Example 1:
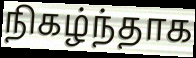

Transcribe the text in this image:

நிகழ்ந்தாக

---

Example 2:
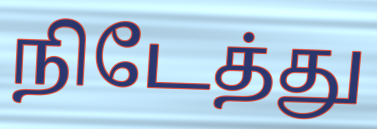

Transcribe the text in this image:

நிடேத்து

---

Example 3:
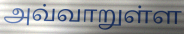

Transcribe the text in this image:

அவ்வாறுள்ள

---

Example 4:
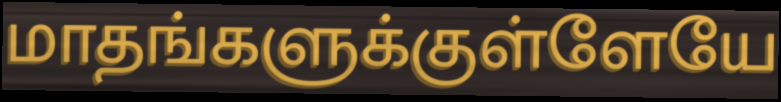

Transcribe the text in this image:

மாதங்களுக்குள்ளேயே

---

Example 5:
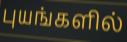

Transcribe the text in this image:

புயங்களில்